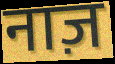
नाज़